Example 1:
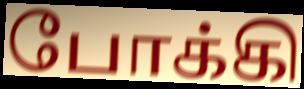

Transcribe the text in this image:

போக்கி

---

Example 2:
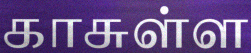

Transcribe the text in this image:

காசுள்ள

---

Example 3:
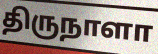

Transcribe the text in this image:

திருநாளா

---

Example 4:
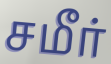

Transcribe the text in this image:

சமீர்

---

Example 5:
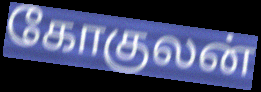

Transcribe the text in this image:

கோகுலன்